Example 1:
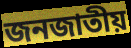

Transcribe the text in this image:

জনজাতীয়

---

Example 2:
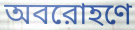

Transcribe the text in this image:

অবরোহণে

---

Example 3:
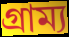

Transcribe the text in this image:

গ্রাম্য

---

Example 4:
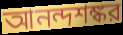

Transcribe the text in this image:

আনন্দশঙ্কর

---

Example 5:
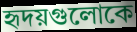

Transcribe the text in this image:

হৃদয়গুলোকে